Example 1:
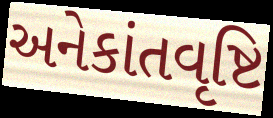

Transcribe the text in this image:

અનેકાંતવૃષ્ટિ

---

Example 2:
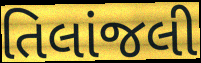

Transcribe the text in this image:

તિલાંજલી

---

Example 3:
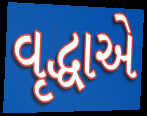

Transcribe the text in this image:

વૃદ્ધાએ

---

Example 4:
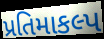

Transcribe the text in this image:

પ્રતિમાકલ્પ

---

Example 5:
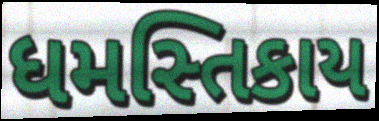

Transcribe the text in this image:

ધમસ્તિકાય